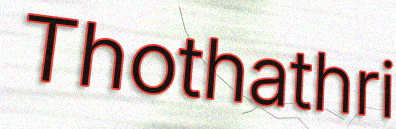
Thothathri